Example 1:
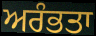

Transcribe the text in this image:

ਅਰੰਭਤਾ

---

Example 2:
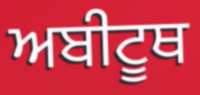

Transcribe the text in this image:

ਅਬੀਟੂਥ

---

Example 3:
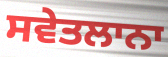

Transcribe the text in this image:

ਸਵੇਤਲਾਨਾ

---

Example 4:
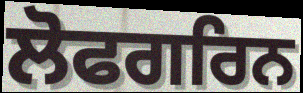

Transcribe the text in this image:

ਲੋਫਗਰਿਨ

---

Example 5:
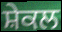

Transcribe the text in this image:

ਸ਼ੇਕਲ